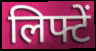
लिफ्टें